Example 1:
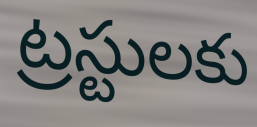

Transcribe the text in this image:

ట్రస్టులకు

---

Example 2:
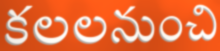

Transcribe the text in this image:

కలలనుంచి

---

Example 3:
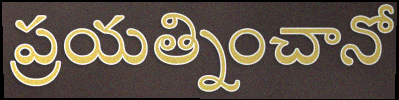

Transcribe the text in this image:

ప్రయత్నించానో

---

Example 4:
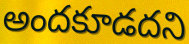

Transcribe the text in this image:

అందకూడదని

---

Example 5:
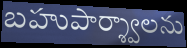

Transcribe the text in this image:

బహుపార్శ్వాలను